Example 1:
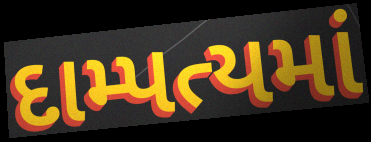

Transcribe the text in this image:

દામ્પત્યમાં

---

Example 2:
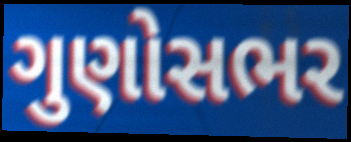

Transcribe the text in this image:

ગુણોસભર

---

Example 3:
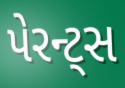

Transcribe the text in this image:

પેરન્ટ્સ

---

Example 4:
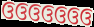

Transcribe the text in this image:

ઉઉઉઉઉઉઉ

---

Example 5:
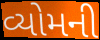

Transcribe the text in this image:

વ્યોમની